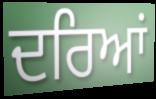
ਦਰਿਆਂ